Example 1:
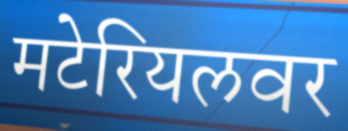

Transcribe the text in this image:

मटेरियलवर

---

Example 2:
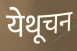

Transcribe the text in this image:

येथूचन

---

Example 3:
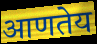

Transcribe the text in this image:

आणतेय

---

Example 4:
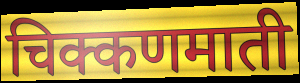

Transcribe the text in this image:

चिक्कणमाती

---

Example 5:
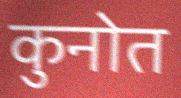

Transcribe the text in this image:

कुनोत